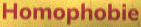
Homophobie